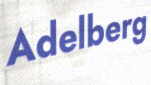
Adelberg